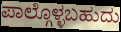
ಪಾಲ್ಗೊಳ್ಳಬಹುದು